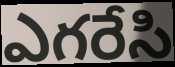
ఎగరేసి